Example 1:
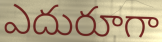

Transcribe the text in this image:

ఎదురూగా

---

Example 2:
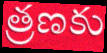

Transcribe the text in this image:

త్రణకు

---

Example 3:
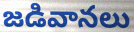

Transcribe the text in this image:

జడివానలు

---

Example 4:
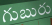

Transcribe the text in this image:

గుబురు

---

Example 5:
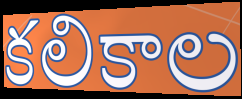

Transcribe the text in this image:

కలికాల